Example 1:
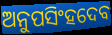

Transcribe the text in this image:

ଅନୁପସିଂହଦେବ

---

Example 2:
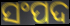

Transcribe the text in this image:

ସଂପଦ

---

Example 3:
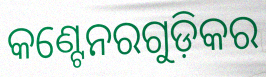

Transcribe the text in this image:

କଣ୍ଟେନରଗୁଡ଼ିକର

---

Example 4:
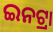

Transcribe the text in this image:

ଇନଟ୍ରା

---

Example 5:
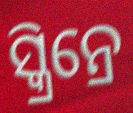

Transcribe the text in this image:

ସ୍କ୍ରିନ୍ରେ